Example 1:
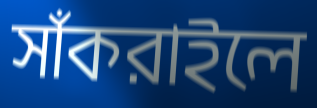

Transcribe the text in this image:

সাঁকরাইলে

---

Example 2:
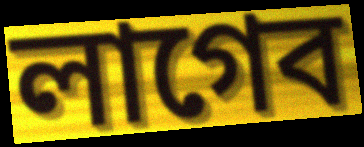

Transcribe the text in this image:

লাগেব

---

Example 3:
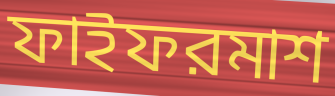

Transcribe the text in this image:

ফাইফরমাশ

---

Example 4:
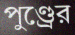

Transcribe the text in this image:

পুণ্ড্রের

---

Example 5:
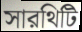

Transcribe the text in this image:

সারথিটি